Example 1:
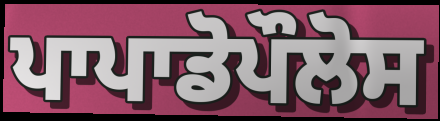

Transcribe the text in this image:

ਪਾਪਾਡੋਪੌਲੋਸ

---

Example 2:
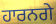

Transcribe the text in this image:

ਹਾਰਨਗੇ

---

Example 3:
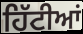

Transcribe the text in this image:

ਹਿੱਟੀਆਂ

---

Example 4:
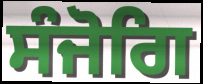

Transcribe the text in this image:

ਸੰਜੋਗਿ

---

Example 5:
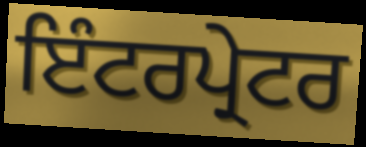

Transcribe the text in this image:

ਇੰਟਰਪ੍ਰੇਟਰ